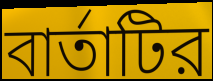
বার্তাটির